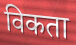
विकता